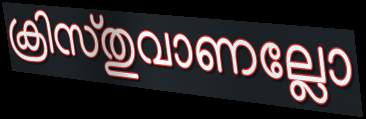
ക്രിസ്തുവാണല്ലോ